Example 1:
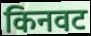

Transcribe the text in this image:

किनवट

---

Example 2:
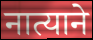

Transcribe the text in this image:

नात्याने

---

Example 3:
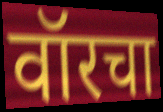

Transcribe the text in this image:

वॉरचा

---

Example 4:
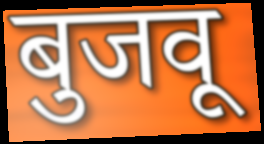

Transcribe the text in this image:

बुजवू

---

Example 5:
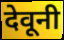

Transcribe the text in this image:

देवूनी